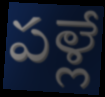
పళ్లే